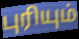
புரியும்